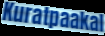
Kuratpaakal